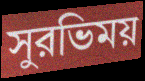
সুরভিময়